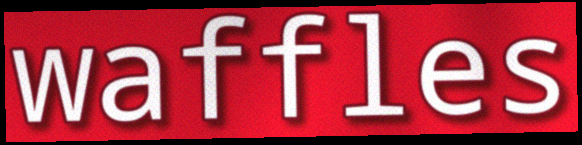
waffles